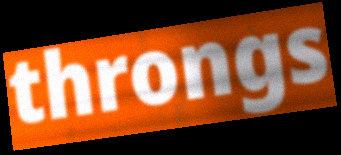
throngs